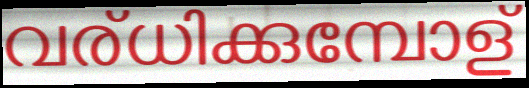
വര്ധിക്കുമ്പോള്